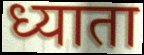
ध्याता